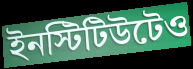
ইনস্টিটিউটেও